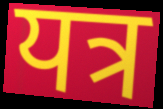
यत्र